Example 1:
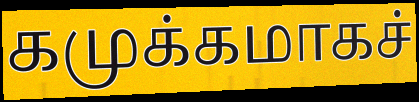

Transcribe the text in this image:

கமுக்கமாகச்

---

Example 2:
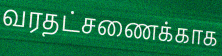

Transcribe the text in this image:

வரதட்சணைக்காக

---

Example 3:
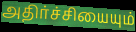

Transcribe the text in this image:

அதிர்ச்சியையும்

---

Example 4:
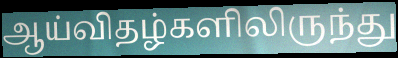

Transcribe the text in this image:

ஆய்விதழ்களிலிருந்து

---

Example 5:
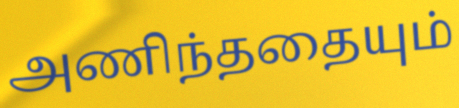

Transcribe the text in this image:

அணிந்ததையும்